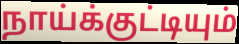
நாய்க்குட்டியும்